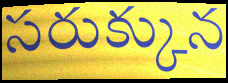
సరుక్కున